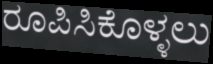
ರೂಪಿಸಿಕೊಳ್ಳಲು